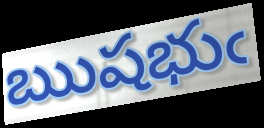
ఋషభుఁ